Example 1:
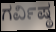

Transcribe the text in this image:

ಗರ್ವಿಷ್ಠ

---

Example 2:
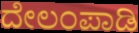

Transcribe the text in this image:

ದೇಲಂಪಾಡಿ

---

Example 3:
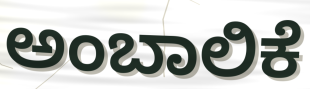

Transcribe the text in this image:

ಅಂಬಾಲಿಕೆ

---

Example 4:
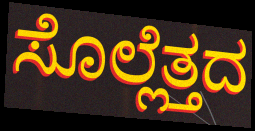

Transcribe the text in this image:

ಸೊಲ್ಲೆತ್ತದ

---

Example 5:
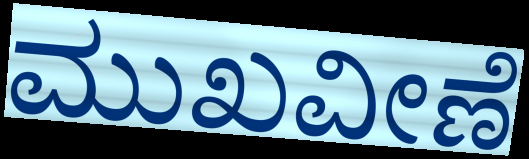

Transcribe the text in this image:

ಮುಖವೀಣೆ